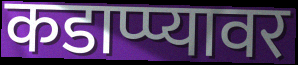
कडाप्प्यावर